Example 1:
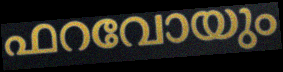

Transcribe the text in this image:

ഫറവോയും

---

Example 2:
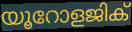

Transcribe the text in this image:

യൂറോളജിക്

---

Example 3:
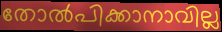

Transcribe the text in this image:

തോൽപിക്കാനാവില്ല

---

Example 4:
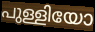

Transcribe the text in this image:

പുള്ളിയോ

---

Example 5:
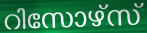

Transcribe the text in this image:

റിസോഴ്സ്